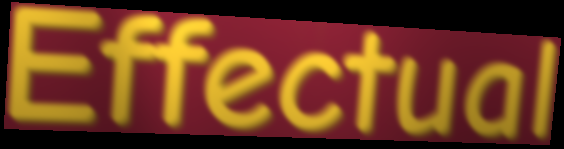
Effectual